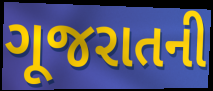
ગૂજરાતની